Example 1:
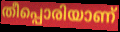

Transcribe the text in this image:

തീപ്പൊരിയാണ്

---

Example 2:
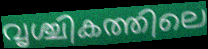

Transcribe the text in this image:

വൃശ്ചികത്തിലെ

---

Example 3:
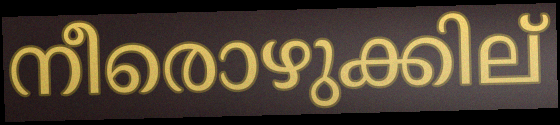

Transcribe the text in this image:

നീരൊഴുക്കില്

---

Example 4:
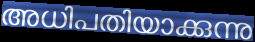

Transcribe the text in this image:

അധിപതിയാക്കുന്നു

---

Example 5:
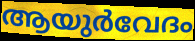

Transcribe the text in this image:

ആയുർവേദം